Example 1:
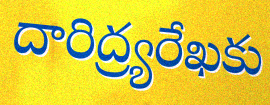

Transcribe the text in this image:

దారిద్ర్యరేఖకు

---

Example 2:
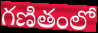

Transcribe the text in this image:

గణితంలో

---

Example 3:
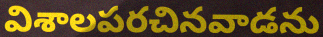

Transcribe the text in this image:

విశాలపరచినవాడను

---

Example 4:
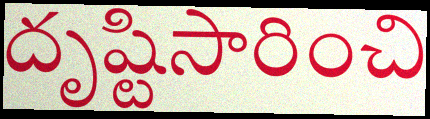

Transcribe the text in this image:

దృష్టిసారించి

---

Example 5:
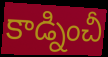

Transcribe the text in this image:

కాడ్నించీ